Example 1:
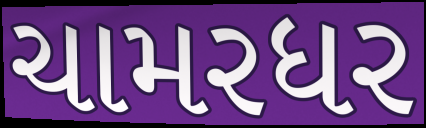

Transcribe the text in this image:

ચામરધર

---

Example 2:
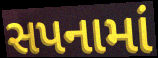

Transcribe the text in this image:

સપનામાં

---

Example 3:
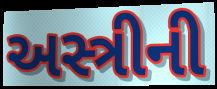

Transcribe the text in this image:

અસ્ત્રીની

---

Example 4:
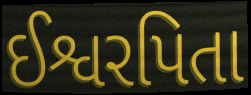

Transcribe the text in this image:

ઈશ્વરપિતા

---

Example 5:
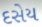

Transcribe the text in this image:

દસેય